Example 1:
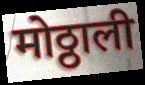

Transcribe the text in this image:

मोठ्ठाली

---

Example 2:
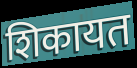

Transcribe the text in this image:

शिकायत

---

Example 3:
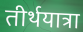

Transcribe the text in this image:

तीर्थयात्रा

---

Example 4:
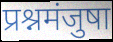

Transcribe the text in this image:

प्रश्नमंजुषा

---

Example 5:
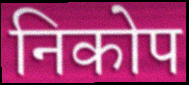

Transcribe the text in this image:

निकोप